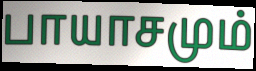
பாயாசமும்